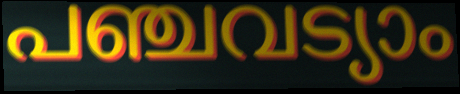
പഞ്ചവട്യാം